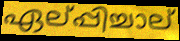
ഏല്പ്പിച്ചാല്